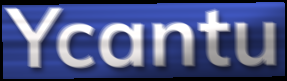
Ycantu